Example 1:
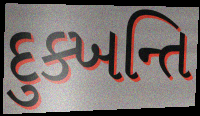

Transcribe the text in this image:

દુક્ખન્તિ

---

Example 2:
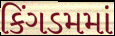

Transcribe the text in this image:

કિંગડમમાં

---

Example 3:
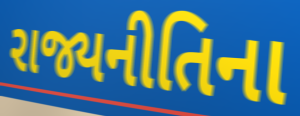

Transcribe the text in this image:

રાજ્યનીતિના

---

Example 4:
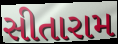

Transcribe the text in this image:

સીતારામ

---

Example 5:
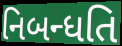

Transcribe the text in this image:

નિબન્ધતિ